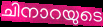
ചിനാറയുടെ